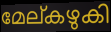
മേല്കഴുകി